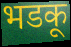
भडकू